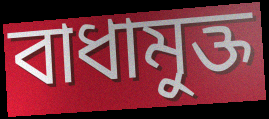
বাধামুক্ত